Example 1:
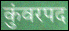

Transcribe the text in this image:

कुंवरपद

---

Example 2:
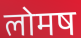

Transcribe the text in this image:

लोमष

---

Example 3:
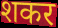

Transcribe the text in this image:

शकर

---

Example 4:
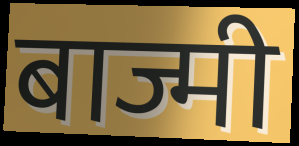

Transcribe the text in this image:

बाज्मी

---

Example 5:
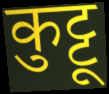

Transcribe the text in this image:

कुट्टू